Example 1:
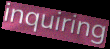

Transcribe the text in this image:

inquiring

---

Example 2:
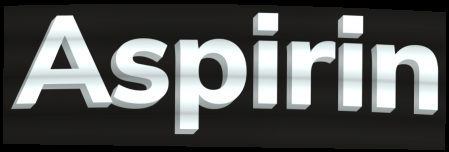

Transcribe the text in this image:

Aspirin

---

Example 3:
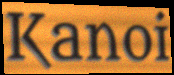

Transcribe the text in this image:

Kanoi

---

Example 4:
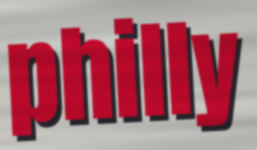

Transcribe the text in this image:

philly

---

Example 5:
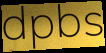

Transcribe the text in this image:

dpbs